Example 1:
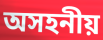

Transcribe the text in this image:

অসহনীয়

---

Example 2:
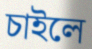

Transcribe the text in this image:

চাইলে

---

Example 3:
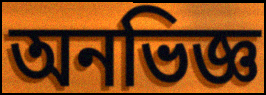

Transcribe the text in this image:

অনভিজ্ঞ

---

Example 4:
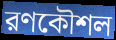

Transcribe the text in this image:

রণকৌশল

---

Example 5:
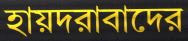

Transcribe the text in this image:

হায়দরাবাদের